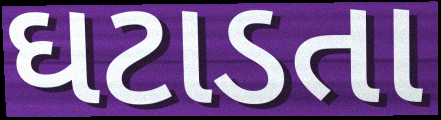
ઘટાડતા